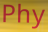
Phy